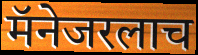
मॅनेजरलाच